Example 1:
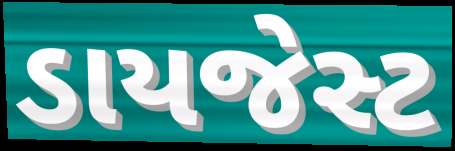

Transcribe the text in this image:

ડાયજેસ્ટ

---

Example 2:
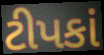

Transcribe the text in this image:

ટીપકાં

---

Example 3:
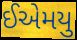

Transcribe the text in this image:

ઈએમયુ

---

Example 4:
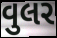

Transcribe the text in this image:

વુલર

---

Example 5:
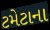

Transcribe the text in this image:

ટમેટાના